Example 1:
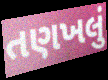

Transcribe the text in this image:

તણખલું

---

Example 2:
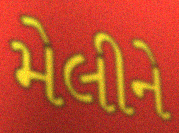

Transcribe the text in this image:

મેલીને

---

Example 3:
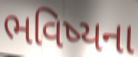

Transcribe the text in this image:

ભવિષ્યના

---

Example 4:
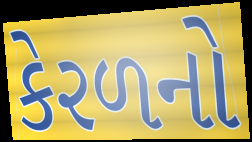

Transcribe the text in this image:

કેરળનો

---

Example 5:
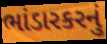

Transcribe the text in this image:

ભાંડારકરનું